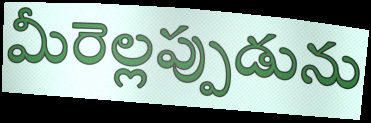
మీరెల్లప్పుడును